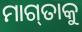
ମାଗ୍‌ତାକୁ